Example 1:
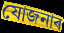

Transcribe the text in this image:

যোজনাৰ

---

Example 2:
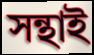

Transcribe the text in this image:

সন্থাই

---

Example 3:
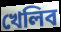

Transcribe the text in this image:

খেলিব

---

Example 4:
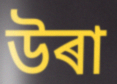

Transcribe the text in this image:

উৰা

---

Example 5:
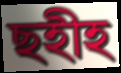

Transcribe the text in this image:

ছহীহ